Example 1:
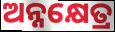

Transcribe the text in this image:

ଅନ୍ନକ୍ଷେତ୍ର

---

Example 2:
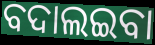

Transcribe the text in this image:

ବଦାଲଇବା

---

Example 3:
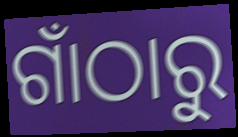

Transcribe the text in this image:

ଗାଁଠାରୁ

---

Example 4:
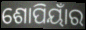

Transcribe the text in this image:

ଶୋପିୟାଁର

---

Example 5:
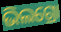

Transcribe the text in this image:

ଭିଲଗ୍ରୋ